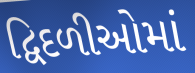
દ્વિદળીઓમાં